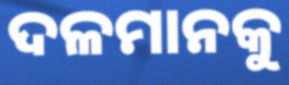
ଦଳମାନକୁ